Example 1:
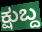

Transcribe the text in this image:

ಕ್ಷುಬ್ದ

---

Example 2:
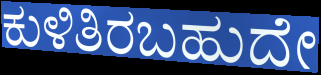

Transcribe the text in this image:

ಕುಳಿತಿರಬಹುದೇ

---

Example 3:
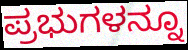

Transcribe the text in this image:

ಪ್ರಭುಗಳನ್ನೂ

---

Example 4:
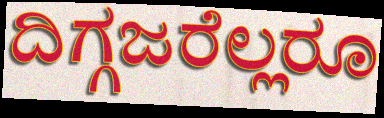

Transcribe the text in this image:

ದಿಗ್ಗಜರೆಲ್ಲರೂ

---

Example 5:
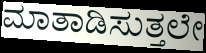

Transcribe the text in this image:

ಮಾತಾಡಿಸುತ್ತಲೇ